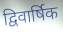
द्विवार्षिक